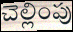
చెల్లింపు